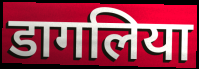
डागलिया